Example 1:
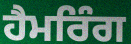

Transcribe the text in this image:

ਹੈਮਰਿੰਗ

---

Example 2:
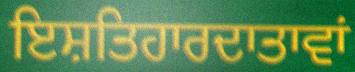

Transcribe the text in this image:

ਇਸ਼ਤਿਹਾਰਦਾਤਾਵਾਂ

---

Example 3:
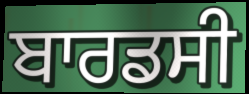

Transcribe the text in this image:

ਬਾਰਡਸੀ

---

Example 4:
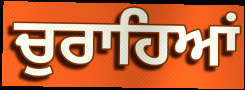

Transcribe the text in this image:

ਚੁਰਾਹਿਆਂ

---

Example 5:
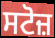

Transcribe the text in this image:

ਸਟੋਜ਼